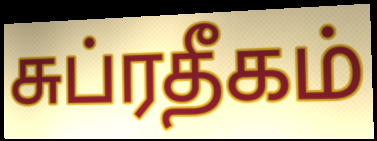
சுப்ரதீகம்